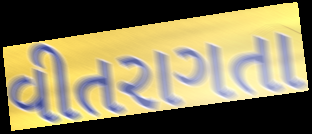
વીતરાગતા